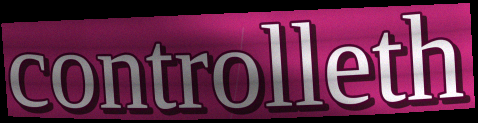
controlleth